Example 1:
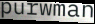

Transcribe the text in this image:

purwman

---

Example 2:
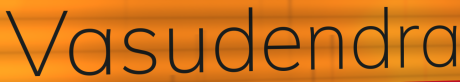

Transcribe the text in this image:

Vasudendra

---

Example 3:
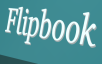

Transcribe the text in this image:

Flipbook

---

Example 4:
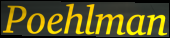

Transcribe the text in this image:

Poehlman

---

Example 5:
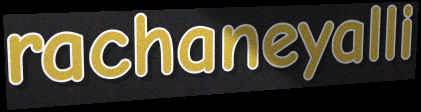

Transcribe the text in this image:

rachaneyalli